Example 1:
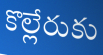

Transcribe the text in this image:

కొల్లేరుకు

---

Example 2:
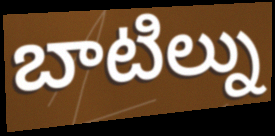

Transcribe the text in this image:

బాటిల్ను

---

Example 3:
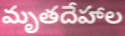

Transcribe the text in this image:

మృతదేహాల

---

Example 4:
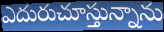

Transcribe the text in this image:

ఎదురుచూస్తున్నాను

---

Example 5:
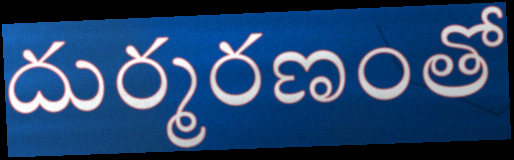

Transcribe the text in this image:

దుర్మరణంతో